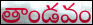
తాండవం